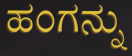
ಹಂಗನ್ನು